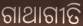
ଗାଥାଗୀତି